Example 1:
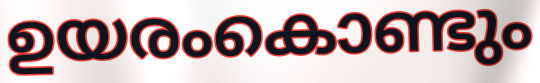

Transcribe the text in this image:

ഉയരംകൊണ്ടും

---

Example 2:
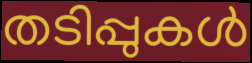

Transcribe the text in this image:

തടിപ്പുകൾ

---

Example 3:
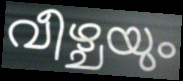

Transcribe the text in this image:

വീഴ്ചയും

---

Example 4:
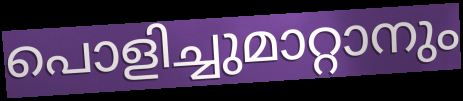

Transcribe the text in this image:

പൊളിച്ചുമാറ്റാനും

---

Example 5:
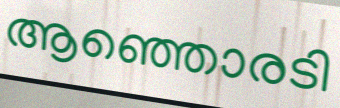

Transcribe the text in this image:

ആഞ്ഞൊരടി